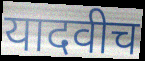
यादवीच